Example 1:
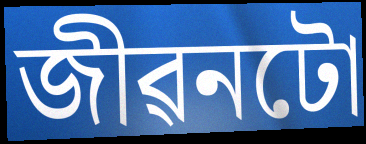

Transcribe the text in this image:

জীৱনটো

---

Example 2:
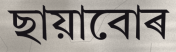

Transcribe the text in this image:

ছায়াবোৰ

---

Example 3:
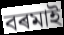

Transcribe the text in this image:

বৰমাই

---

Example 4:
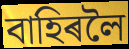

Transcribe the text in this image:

বাহিৰলৈ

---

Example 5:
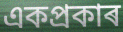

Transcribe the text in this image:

একপ্ৰকাৰ